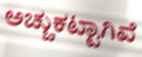
ಅಚ್ಚುಕಟ್ಟಾಗಿವೆ